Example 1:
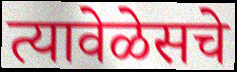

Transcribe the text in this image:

त्यावेळेसचे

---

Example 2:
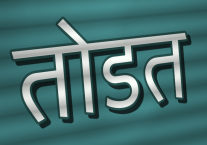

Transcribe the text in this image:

तोडत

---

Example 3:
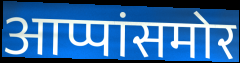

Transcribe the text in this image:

आप्पांसमोर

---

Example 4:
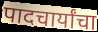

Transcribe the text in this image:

पादचार्यांचा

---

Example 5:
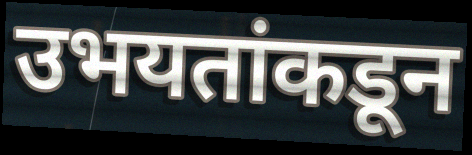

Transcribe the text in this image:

उभयतांकडून